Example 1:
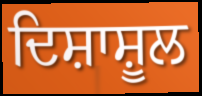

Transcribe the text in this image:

ਦਿਸ਼ਾਸ਼ੂਲ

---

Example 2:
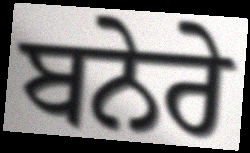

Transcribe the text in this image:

ਬਨੇਰੇ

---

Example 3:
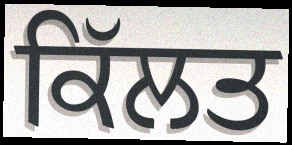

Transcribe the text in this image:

ਕਿੱਲਤ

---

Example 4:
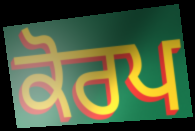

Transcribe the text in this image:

ਕੋਰਪ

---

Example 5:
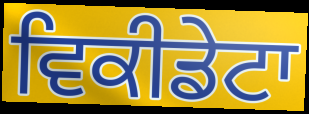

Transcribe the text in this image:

ਵਿਕੀਡੇਟਾ